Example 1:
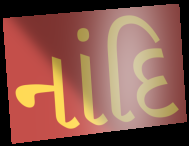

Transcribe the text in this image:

નાંદિ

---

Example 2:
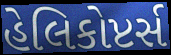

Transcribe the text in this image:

હેલિકોપ્ટર્સ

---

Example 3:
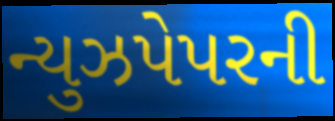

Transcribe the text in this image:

ન્યુઝપેપરની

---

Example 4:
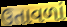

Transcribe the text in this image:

ઉતાવળાં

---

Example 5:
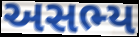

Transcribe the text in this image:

અસભ્ય